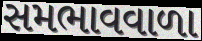
સમભાવવાળા